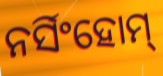
ନର୍ସିଂହୋମ୍